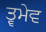
ਤ੍ਵਮੇਵ